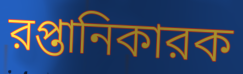
রপ্তানিকারক